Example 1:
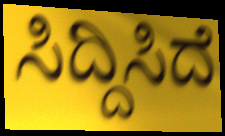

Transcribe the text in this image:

ಸಿದ್ದಿಸಿದೆ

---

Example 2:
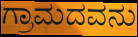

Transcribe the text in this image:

ಗ್ರಾಮದವನು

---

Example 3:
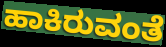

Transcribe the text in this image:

ಹಾಕಿರುವಂತೆ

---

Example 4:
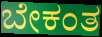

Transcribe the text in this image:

ಬೇಕಂತ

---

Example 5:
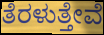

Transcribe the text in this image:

ತೆರಳುತ್ತೇವೆ